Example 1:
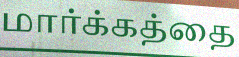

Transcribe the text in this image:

மார்க்கத்தை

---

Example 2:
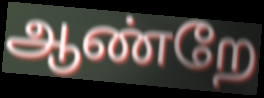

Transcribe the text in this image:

ஆண்றே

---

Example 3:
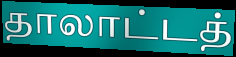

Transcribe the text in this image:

தாலாட்டத்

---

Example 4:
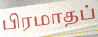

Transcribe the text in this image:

பிரமாதப்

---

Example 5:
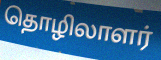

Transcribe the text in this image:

தொழிலாளர்